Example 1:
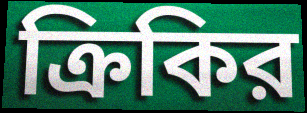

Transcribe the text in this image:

ক্রিকির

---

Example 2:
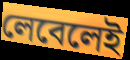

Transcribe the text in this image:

লেবেলেই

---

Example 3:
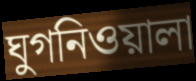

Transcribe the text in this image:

ঘুগনিওয়ালা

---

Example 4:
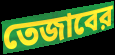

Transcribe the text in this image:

তেজাবের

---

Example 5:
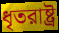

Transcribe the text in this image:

ধৃতরাষ্ট্র